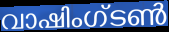
വാഷിംഗ്ടൺ